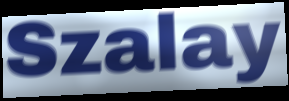
Szalay